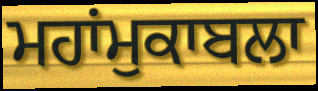
ਮਹਾਂਮੁਕਾਬਲਾ